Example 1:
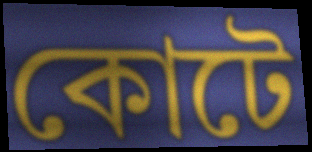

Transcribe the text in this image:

কোটে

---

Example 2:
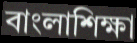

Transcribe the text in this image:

বাংলাশিক্ষা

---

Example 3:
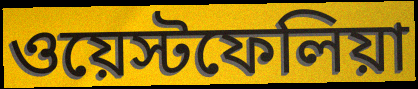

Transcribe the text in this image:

ওয়েস্টফেলিয়া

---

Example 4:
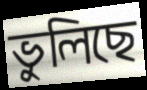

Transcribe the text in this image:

ভুলিছে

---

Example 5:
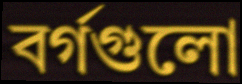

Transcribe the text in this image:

বর্গগুলো